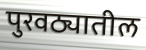
पुरवठ्यातील